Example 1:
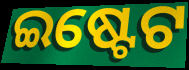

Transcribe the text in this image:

ଇଷ୍ଟେଟ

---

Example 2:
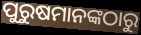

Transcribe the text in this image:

ପୁରୁଷମାନଙ୍କଠାରୁ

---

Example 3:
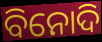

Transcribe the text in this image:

ବିନୋଦି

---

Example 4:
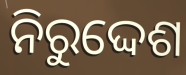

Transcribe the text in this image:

ନିରୁଦ୍ଦେଶ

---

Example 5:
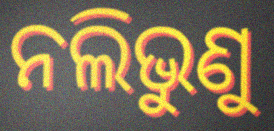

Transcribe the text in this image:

ନଲିଭୁଣୁ